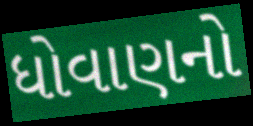
ધોવાણનો